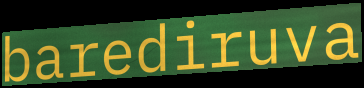
barediruva